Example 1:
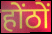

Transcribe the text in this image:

होंठों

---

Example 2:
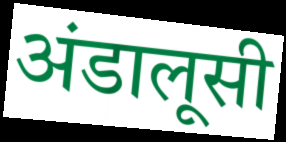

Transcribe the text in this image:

अंडालूसी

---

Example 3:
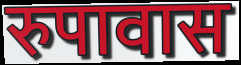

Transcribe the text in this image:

रुपावास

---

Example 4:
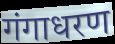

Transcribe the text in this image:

गंगाधरण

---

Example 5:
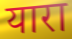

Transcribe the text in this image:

यारा